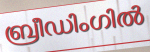
ബ്രീഡിംഗിൽ